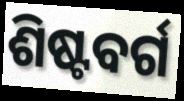
ଶିଷ୍ଟବର୍ଗ